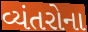
વ્યંતરોના